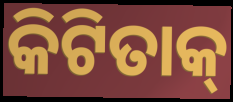
କିଟିତାକ୍